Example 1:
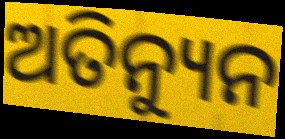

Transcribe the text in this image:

ଅତିନ୍ୟୁନ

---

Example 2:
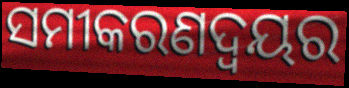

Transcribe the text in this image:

ସମୀକରଣଦ୍ଵୟର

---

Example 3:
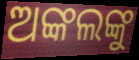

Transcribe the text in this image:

ଅଙ୍କଲଙ୍କୁ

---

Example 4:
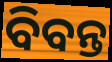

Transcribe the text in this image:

ବିବନ୍ତ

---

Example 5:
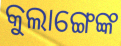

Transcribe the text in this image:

କୁଲାଙ୍ଗେଙ୍କ